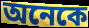
অনেকে